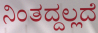
ನಿಂತದ್ದಲ್ಲದೆ